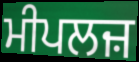
ਮੀਪਲਜ਼